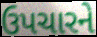
ઉપચારને